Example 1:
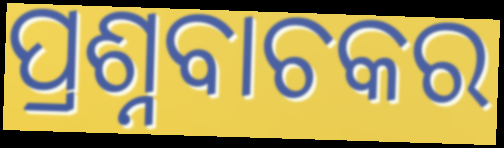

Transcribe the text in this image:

ପ୍ରଶ୍ନବାଚକର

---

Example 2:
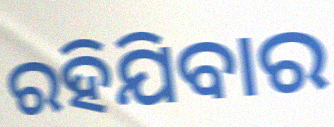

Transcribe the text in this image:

ରହିଯିବାର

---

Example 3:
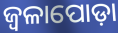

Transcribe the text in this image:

ଜ୍ୱଳାପୋଡ଼ା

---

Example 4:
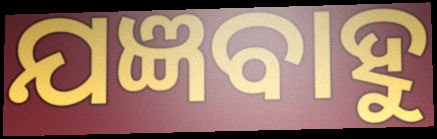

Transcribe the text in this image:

ଯଜ୍ଞବାହୁ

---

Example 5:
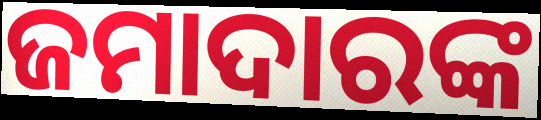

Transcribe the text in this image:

ଜମାଦାରଙ୍କ